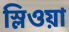
স্লিওয়া